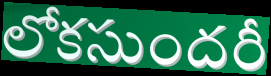
లోకసుందరీ